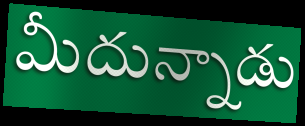
మీదున్నాడు